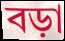
বড়া